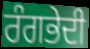
ਰੰਗਭੇਦੀ